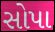
સોપા